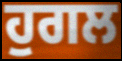
ਹੁਗਲ